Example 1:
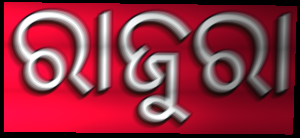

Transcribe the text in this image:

ରାଜୁରା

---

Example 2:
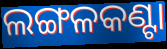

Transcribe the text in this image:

ଲଙ୍ଗଳକଣ୍ଟା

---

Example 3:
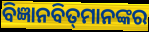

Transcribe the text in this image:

ବିଜ୍ଞାନବିତ୍‌ମାନଙ୍କର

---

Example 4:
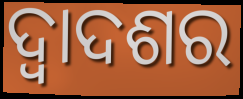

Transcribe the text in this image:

ଦ୍ୱାଦଶର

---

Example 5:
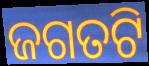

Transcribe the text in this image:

ଜଗତଟି